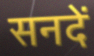
सनदें